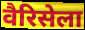
वैरिसेला